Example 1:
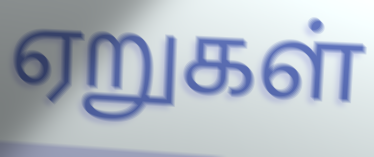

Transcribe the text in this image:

ஏறுகள்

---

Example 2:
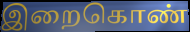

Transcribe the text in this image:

இறைகொண்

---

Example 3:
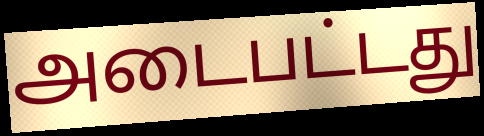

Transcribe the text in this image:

அடைபட்டது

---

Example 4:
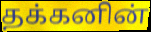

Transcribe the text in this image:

தக்கனின்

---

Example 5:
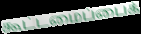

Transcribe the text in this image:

கூட்டமைப்பைக்